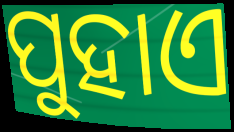
ପୁହାଏ